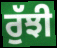
ਰੁੱਝੀ